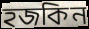
হজকিন